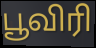
பூவிரி